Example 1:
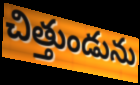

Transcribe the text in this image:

చిత్తుండును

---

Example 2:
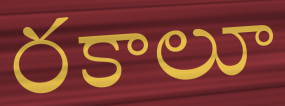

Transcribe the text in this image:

రకాలూ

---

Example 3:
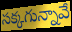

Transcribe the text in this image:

సక్కగున్నావే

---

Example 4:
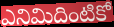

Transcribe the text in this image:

ఎనిమిదింటికో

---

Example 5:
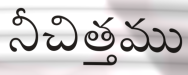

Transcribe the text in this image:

నీచిత్తము